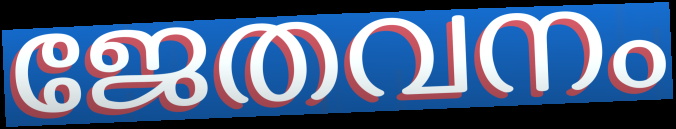
ജേതവനം